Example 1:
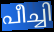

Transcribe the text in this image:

പീച്ചി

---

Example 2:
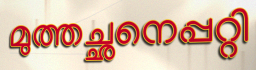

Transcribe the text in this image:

മുത്തച്ഛനെപ്പറ്റി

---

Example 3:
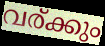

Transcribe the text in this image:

വര്ക്കും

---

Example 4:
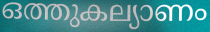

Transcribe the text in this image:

ഒത്തുകല്യാണം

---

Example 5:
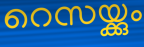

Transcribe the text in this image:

റെസയ്ക്കും